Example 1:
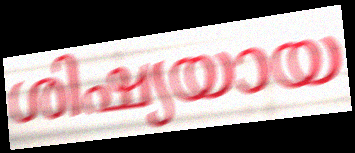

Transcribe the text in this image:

ശിഷ്യയായ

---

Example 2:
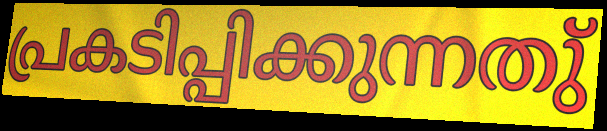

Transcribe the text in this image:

പ്രകടിപ്പിക്കുന്നതു്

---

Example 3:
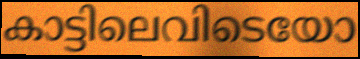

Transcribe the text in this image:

കാട്ടിലെവിടെയോ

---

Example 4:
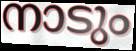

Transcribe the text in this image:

നാടും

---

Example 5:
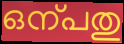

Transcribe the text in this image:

ഒന്പതു